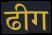
ढीग